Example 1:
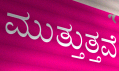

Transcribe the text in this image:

ಮುತ್ತುತ್ತವೆ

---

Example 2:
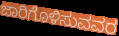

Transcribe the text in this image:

ಜಾರಿಗೊಳಿಸುವವರ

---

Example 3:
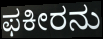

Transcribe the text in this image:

ಫಕೀರನು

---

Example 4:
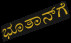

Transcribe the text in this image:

ಭೂತಾನ್‌ಗೆ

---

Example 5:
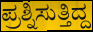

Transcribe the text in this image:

ಪ್ರಶ್ನಿಸುತ್ತಿದ್ದ